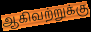
ஆகிவற்றுக்கு